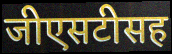
जीएसटीसह